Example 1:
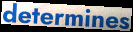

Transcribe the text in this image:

determines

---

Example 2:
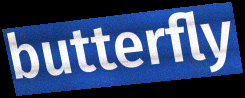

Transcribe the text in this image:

butterfly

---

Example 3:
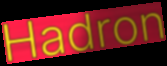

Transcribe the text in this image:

Hadron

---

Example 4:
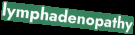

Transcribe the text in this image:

lymphadenopathy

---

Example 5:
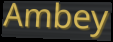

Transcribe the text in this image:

Ambey